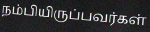
நம்பியிருப்பவர்கள்